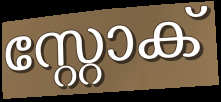
സ്റ്റോക്